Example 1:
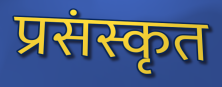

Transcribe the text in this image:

प्रसंस्कृत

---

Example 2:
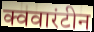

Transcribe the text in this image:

क्ववारंटीन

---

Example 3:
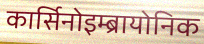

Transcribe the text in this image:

कार्सिनोइम्ब्रायोनिक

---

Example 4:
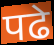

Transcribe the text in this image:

पढे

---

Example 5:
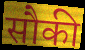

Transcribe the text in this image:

सौकी